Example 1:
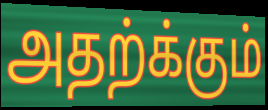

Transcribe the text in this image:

அதற்க்கும்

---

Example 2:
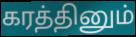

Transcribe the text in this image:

கரத்தினும்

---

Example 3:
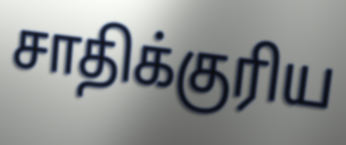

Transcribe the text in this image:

சாதிக்குரிய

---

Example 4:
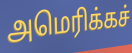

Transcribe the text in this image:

அமெரிக்கச்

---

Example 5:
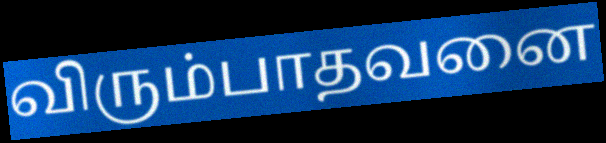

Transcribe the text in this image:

விரும்பாதவனை